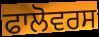
ਫਾਲੋਵਰਸ